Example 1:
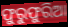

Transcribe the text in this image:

ଫୁରୁଫୁରିଆ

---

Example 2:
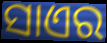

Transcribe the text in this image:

ସାଏର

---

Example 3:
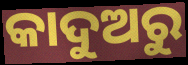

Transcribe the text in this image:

କାଦୁଅରୁ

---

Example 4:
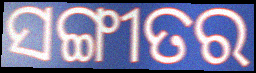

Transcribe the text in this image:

ସଙ୍ଗୀତର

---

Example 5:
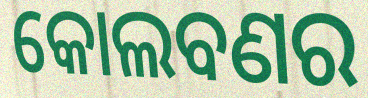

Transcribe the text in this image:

କୋଲବଣର